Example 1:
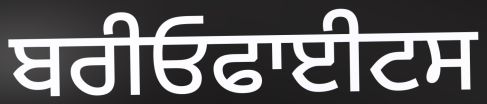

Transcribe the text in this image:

ਬਰੀਓਫਾਈਟਸ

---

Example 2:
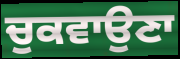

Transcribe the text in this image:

ਚੁਕਵਾਉਣਾ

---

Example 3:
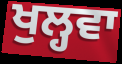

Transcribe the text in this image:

ਖੁਲ੍ਹਵਾ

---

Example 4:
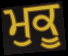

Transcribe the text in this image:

ਮੁਕੂ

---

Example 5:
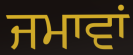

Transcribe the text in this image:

ਜਮਾਵਾਂ